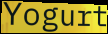
Yogurt